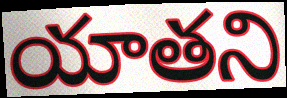
యాతని